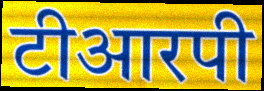
टीआरपी